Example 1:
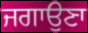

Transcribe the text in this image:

ਜਗਾਉਣਾ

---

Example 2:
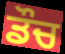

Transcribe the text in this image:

ਡੌਚ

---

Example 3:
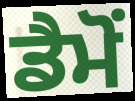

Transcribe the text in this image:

ਡੈਮੋਂ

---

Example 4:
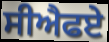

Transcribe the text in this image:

ਸੀਐਫਏ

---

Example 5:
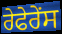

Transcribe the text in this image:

ਰੇਫੇਰੇਂਸ